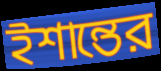
ইশান্তের